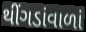
થીંગડાંવાળાં